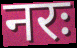
नरः